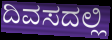
ದಿವಸದಲ್ಲಿ